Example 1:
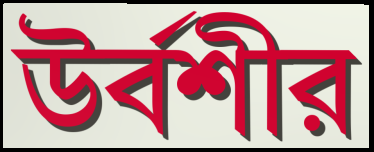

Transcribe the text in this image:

উর্বশীর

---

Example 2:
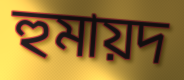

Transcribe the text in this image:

হুমায়দ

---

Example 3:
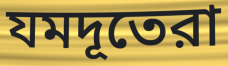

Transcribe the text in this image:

যমদূতেরা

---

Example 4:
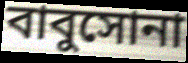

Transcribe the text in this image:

বাবুসোনা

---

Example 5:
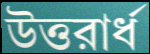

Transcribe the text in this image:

উত্তরার্ধ